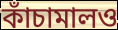
কাঁচামালও